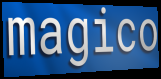
magico